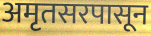
अमृतसरपासून